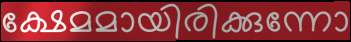
ക്ഷേമമായിരിക്കുന്നോ